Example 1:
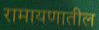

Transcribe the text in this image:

रामायणातील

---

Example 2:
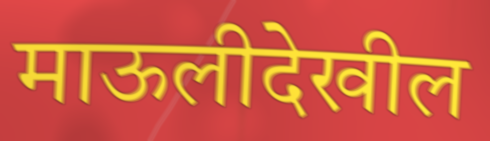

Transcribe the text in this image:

माऊलीदेखील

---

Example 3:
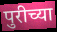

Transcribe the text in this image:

पुरीच्या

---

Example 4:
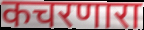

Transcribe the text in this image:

कचरणारा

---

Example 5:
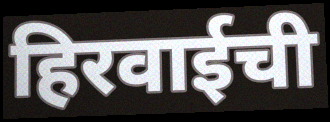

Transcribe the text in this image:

हिरवाईची